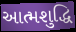
આત્મશુદ્ધિ